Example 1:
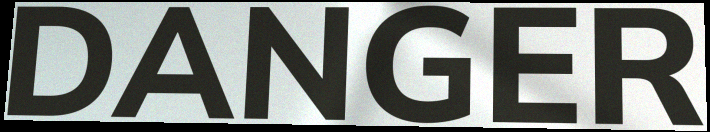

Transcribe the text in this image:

DANGER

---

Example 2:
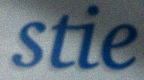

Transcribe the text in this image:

stie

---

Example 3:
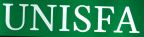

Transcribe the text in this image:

UNISFA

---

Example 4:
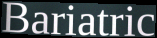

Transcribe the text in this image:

Bariatric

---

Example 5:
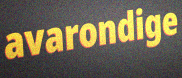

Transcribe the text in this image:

avarondige